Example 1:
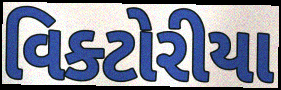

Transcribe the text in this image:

વિક્ટોરીયા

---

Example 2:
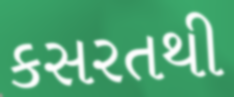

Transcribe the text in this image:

કસરતથી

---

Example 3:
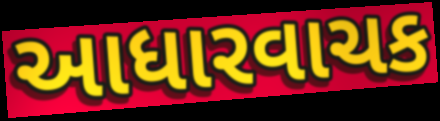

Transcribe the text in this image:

આધારવાચક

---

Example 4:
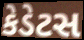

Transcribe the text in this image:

કેડેટસ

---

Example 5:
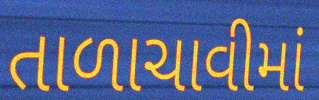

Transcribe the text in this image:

તાળાચાવીમાં